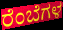
ರೆಂಬೆಗಳ